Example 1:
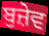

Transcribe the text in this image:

ਬੁਜ਼ੇਵ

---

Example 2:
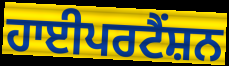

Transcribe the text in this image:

ਹਾਈਪਰਟੈਂਸ਼ਨ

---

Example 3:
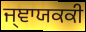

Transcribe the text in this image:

ਜ੍ਞਾਯਕਕੀ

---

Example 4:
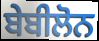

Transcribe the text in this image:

ਬੇਬੀਲੋਨ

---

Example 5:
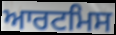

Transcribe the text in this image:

ਆਰਟਮਿਸ